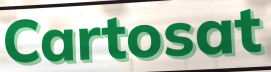
Cartosat